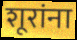
शूरांना